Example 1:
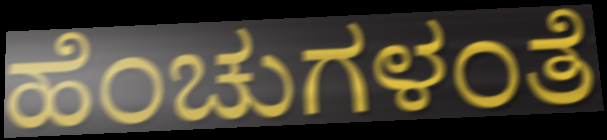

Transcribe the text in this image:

ಹೆಂಚುಗಳಂತೆ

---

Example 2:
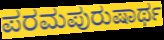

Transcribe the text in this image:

ಪರಮಪುರುಷಾರ್ಥ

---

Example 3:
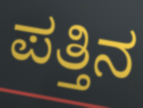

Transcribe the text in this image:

ಪತ್ತಿನ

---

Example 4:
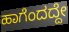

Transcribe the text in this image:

ಹಾಗೆಂದದ್ದೇ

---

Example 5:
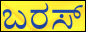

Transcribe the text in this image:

ಬರಸ್